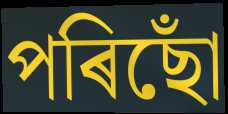
পৰিছোঁ